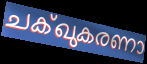
ചക്ഖുകരണാ